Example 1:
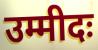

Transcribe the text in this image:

उम्मीदः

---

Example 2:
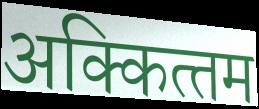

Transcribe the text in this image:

अक्‍कित्‍तम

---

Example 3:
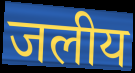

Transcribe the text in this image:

जलीय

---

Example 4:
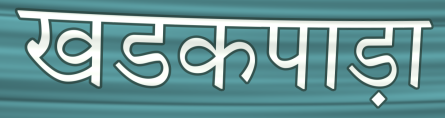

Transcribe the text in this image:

खडकपाड़ा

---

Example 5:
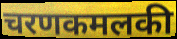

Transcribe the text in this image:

चरणकमलकी